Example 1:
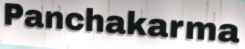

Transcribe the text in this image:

Panchakarma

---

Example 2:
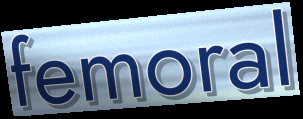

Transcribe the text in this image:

femoral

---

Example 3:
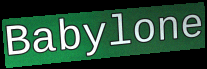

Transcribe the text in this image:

Babylone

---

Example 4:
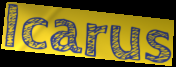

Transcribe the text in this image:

Icarus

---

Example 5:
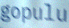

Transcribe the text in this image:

gopulu